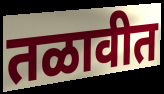
तळावीत